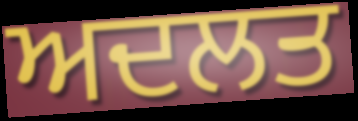
ਅਦਲਤ